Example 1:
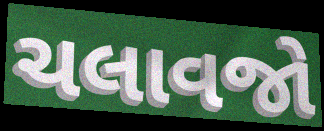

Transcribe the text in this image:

ચલાવજો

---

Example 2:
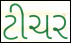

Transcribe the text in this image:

ટીચર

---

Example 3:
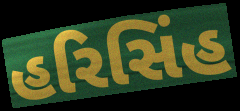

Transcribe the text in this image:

હરિસિંહ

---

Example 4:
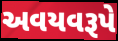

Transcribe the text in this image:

અવયવરૂપે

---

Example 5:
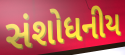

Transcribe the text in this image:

સંશોધનીય